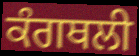
ਕੰਗਥਲੀ